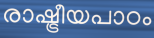
രാഷ്ട്രീയപാഠം